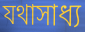
যথাসাধ্য